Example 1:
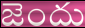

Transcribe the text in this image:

జెందు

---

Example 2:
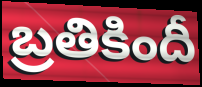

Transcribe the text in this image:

బ్రతికిందీ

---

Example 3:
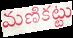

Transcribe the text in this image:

మణికట్టు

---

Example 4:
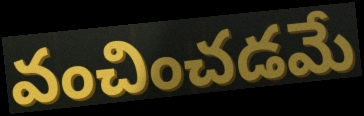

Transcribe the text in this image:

వంచించడమే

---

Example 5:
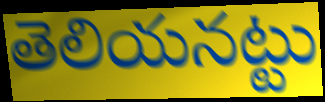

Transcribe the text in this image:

తెలియనట్టు